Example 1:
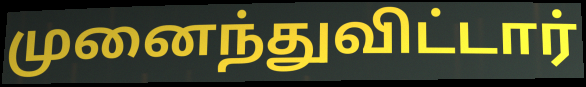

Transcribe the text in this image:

முனைந்துவிட்டார்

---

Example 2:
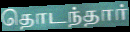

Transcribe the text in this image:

தொடந்தார்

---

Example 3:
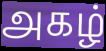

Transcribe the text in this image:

அகழ்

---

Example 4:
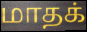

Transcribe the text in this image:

மாதக்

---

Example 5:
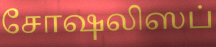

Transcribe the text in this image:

சோஷலிஸப்